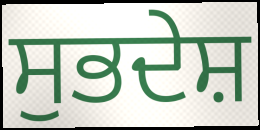
ਸੁਭਦੇਸ਼